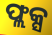
ଫ୍ଲକ୍ସ